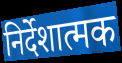
निर्देशात्मक